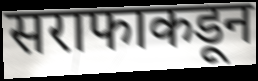
सराफाकडून